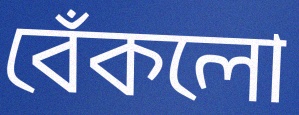
বেঁকলো